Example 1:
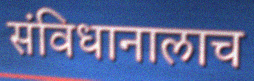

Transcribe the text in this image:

संविधानालाच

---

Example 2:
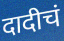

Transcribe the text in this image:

दादीचं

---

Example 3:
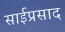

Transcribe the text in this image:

साईप्रसाद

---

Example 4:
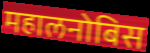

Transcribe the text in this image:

महालनोबिस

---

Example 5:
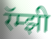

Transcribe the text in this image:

रॅम्झी